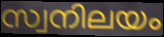
സ്വനിലയം